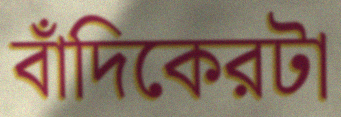
বাঁদিকেরটা